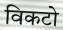
विकटो